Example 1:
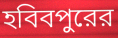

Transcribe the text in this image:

হবিবপুরের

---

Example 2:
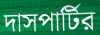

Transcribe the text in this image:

দাসপার্টির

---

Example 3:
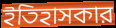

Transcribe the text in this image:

ইতিহাসকার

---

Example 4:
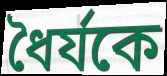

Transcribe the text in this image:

ধৈর্যকে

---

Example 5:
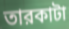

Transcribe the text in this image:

তারকাটা